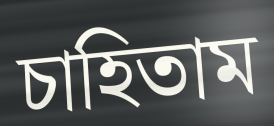
চাহিতাম